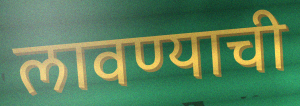
लावण्याची